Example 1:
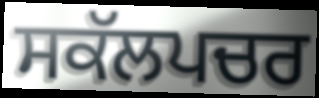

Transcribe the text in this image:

ਸਕੱਲਪਚਰ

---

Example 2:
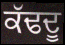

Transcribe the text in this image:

ਕੱਢਦੂ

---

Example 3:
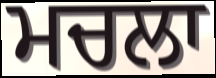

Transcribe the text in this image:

ਮਚਲਾ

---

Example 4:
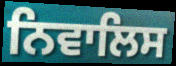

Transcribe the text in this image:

ਨਿਵਾਲਿਸ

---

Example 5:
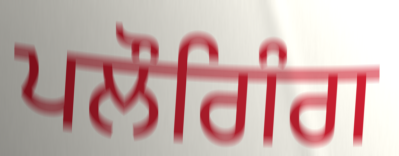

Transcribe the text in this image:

ਪਲੌਗਿੰਗ